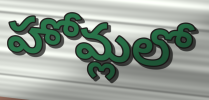
హోమ్లలో